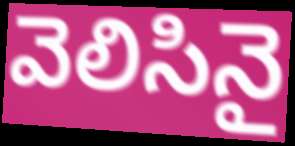
వెలిసినై